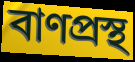
বাণপ্রস্থ